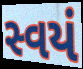
સ્વયં